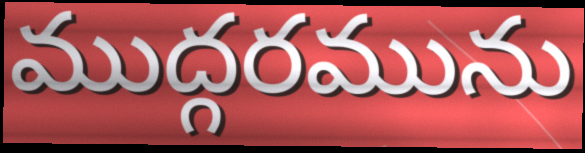
ముద్గరమును